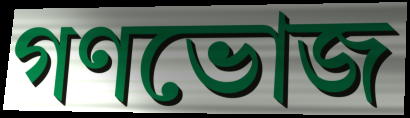
গণভোজ